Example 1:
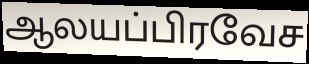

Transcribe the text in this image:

ஆலயப்பிரவேச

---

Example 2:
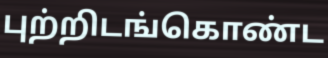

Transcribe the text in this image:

புற்றிடங்கொண்ட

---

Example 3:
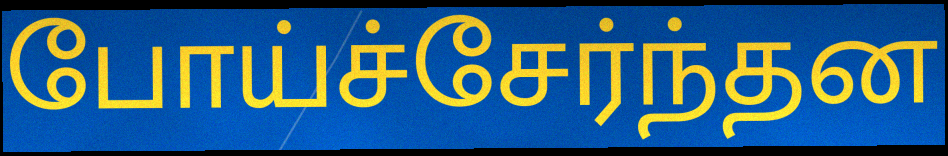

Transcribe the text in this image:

போய்ச்சேர்ந்தன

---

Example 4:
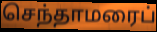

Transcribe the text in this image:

செந்தாமரைப்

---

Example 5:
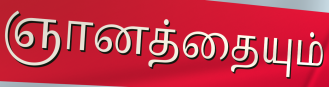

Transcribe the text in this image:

ஞானத்தையும்